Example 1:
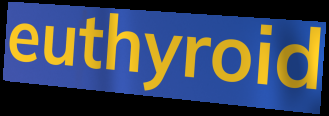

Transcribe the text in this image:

euthyroid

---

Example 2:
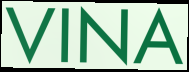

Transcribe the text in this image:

VINA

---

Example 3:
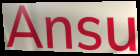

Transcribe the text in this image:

Ansu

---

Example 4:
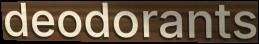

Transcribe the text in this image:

deodorants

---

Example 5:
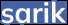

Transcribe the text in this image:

sarik